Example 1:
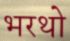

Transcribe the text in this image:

भरथो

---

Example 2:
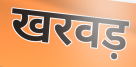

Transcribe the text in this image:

खरवड़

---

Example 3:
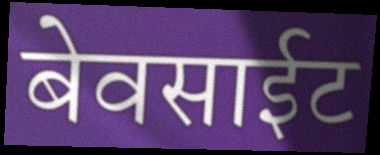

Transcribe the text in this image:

बेवसाईट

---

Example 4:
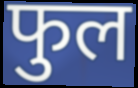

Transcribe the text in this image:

फुल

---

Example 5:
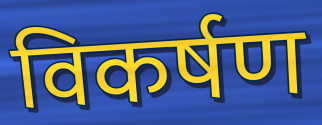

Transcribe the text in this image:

विकर्षण